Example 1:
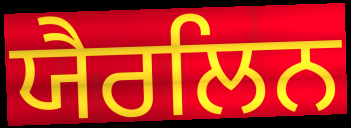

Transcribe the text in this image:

ਯੈਰਲਿਨ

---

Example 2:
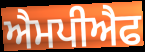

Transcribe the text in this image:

ਐਮਪੀਐਫ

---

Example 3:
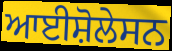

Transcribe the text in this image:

ਆਈਸ਼ੋਲੇਸਨ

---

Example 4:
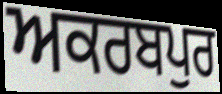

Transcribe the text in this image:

ਅਕਰਬਪੁਰ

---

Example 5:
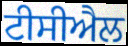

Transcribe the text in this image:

ਟੀਸੀਐਲ